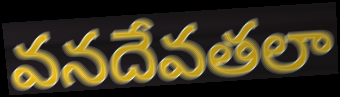
వనదేవతలా